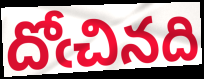
దోఁచినది